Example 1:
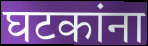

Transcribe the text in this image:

घटकांना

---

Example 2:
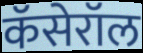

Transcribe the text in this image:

कॅसेरॉल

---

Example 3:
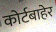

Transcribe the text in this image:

कोर्टबाहेर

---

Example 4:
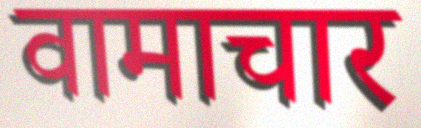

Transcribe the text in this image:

वामाचार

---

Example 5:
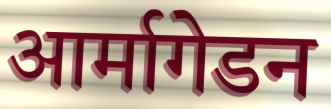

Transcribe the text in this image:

आर्मागेडन